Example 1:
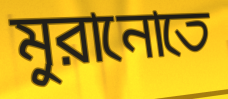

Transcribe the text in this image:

মুরানোতে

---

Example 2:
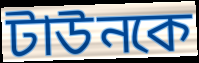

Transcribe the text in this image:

টাউনকে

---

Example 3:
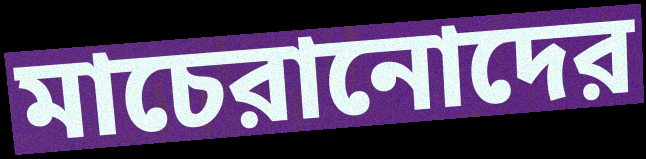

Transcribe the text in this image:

মাচেরানোদের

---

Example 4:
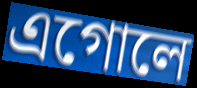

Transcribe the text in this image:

এগোলে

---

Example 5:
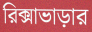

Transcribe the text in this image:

রিক্সাভাড়ার